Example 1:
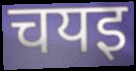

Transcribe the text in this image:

चयइ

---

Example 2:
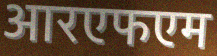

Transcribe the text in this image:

आरएफएम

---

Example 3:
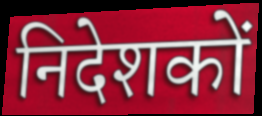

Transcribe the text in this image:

निदेशकों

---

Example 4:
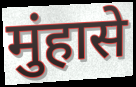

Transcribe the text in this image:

मुंहासे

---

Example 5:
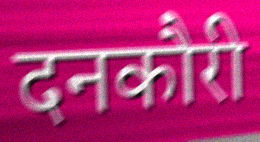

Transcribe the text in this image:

दनकौरी